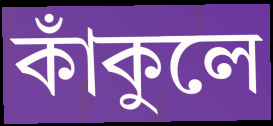
কাঁকুলে